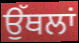
ਉੱਥਲਾਂ